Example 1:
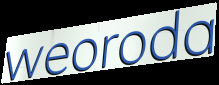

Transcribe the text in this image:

weoroda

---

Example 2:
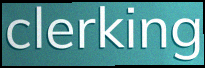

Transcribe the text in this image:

clerking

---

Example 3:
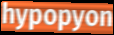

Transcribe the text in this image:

hypopyon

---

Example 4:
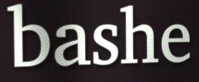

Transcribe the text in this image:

bashe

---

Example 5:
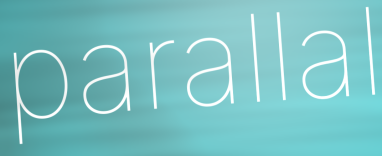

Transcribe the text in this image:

parallal